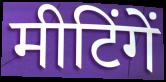
मीटिंगें